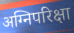
अग्निपरिक्षा